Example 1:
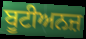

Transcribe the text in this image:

ਬੂਟੀਅਨਜ਼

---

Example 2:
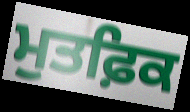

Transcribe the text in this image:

ਮੁਤਫ਼ਿਕ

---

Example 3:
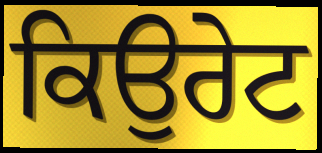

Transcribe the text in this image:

ਕਿਉਰੇਟ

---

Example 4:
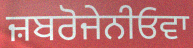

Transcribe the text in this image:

ਜ਼ਬਰੋਜੇਨੀਓਵਾ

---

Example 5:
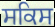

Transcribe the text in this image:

ਸਕਿਸ